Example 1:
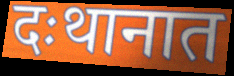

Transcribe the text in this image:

दःथानात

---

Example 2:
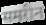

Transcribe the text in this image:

समरीन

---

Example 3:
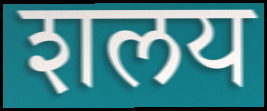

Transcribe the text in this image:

शलय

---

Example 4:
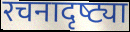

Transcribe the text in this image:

रचनादृष्ट्या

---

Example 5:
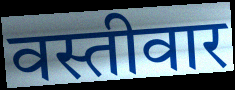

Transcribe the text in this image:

वस्तीवार